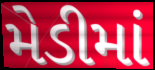
મેડીમાં